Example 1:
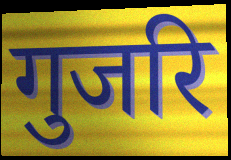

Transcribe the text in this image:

गुजरि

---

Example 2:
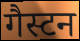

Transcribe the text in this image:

गैस्टन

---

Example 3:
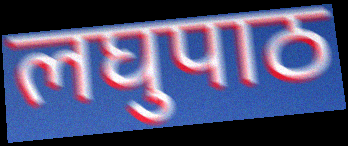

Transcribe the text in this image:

लघुपाठ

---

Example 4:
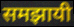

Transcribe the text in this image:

समझायी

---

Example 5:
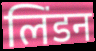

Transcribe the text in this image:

लिंडन